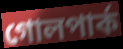
গোলপার্ক